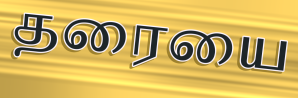
தரையை